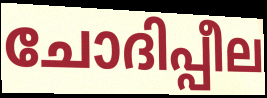
ചോദിപ്പീല